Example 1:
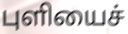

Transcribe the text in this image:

புளியைச்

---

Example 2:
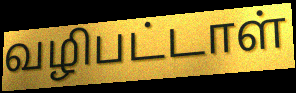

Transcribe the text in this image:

வழிபட்டாள்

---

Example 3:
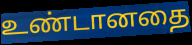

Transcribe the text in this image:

உண்டானதை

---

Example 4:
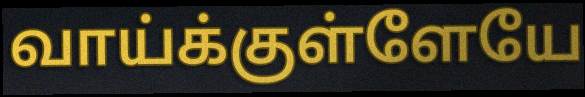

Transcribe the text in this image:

வாய்க்குள்ளேயே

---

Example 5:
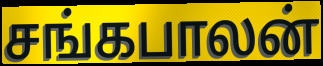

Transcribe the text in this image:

சங்கபாலன்